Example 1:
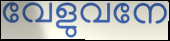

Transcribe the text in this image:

വേളുവനേ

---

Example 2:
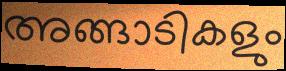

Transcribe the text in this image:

അങ്ങാടികളും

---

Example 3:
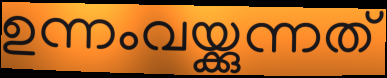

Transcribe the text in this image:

ഉന്നംവയ്ക്കുന്നത്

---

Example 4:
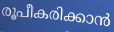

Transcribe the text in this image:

രൂപീകരിക്കാൻ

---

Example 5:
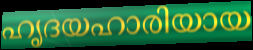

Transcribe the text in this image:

ഹൃദയഹാരിയായ